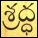
శ్రద్ధ